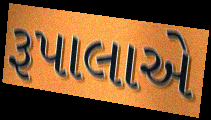
રૂપાલાએ